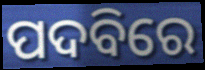
ପଦବିରେ